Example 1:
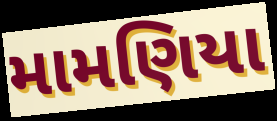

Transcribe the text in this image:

મામણિયા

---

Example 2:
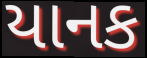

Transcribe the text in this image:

યાનક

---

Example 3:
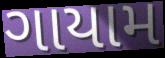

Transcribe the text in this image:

ગાયામ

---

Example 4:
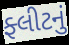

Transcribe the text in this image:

ફ્લીટનું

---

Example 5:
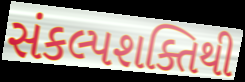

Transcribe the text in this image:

સંકલ્પશક્તિથી